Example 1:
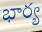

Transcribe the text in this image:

భార్య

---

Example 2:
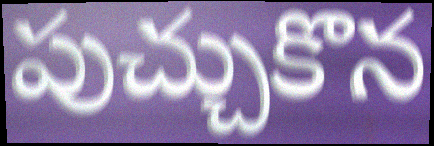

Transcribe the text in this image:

పుచ్చుకొన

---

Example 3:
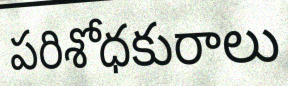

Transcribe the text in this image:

పరిశోధకురాలు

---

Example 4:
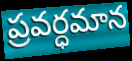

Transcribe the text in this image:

ప్రవర్ధమాన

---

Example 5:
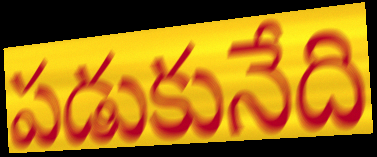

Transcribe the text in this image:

పడుకునేది